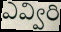
ఎవ్విరి